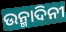
ଉନ୍ମାଦିନୀ